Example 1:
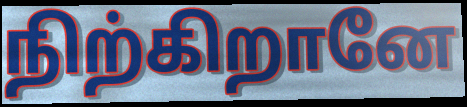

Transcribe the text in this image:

நிற்கிறானே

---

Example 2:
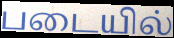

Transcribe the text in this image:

படையில்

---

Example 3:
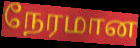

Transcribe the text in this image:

நேரமான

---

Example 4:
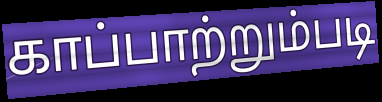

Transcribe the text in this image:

காப்பாற்றும்படி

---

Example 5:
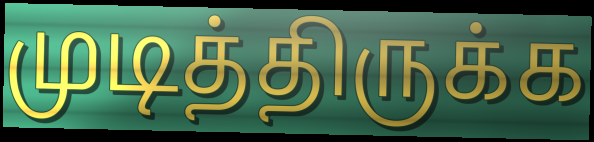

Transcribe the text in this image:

முடித்திருக்க